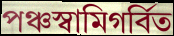
পঞ্চস্বামিগর্বিত